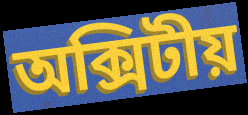
অক্সিটীয়